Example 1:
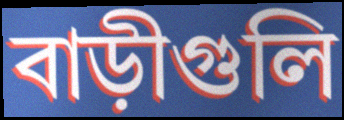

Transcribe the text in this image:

বাড়ীগুলি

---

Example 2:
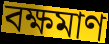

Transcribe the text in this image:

বক্ষমাণ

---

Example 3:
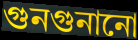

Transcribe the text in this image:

গুনগুনানো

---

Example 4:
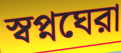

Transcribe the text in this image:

স্বপ্নঘেরা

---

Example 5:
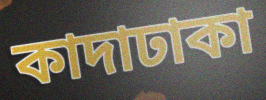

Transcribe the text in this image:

কাদাঢাকা